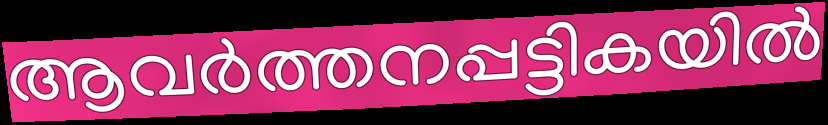
ആവർത്തനപ്പട്ടികയിൽ